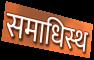
समाधिस्थ